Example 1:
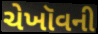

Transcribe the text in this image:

ચેખૉવની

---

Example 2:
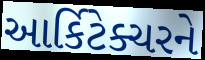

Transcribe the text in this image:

આર્કિટેક્ચરને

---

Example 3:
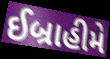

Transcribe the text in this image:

ઈબ્રાહીમે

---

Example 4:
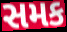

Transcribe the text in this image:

સમક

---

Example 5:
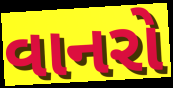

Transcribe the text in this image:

વાનરો